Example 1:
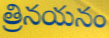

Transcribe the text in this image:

త్రినయనం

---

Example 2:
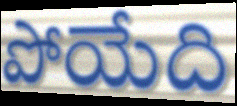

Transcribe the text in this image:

పోయేది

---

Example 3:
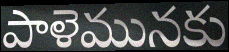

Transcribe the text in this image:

పాళెమునకు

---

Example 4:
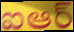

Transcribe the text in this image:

ఐఆర్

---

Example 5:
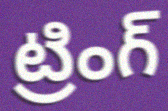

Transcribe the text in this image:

ట్రింగ్